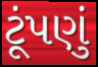
ટૂંપણું